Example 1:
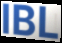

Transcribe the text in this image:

IBL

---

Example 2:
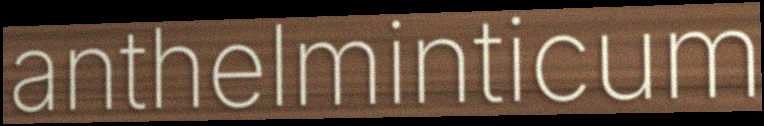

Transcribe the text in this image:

anthelminticum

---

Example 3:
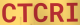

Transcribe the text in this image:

CTCRI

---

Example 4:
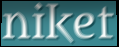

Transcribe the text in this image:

niket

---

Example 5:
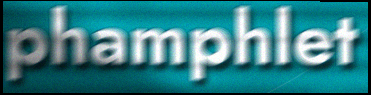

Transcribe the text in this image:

phamphlet